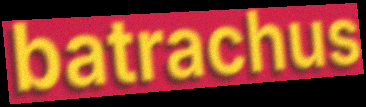
batrachus